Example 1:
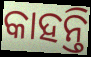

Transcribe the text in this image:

କାହନ୍ତି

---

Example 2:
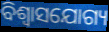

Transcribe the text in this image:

ବିଶ୍ବାସଯୋଗ୍ୟ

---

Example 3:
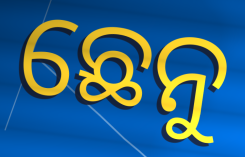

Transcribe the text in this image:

ଛେନୁ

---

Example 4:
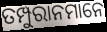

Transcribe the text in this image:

ତମ୍ପୁରାନମାନେ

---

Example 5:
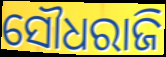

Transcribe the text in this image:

ସୌଧରାଜି